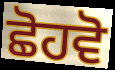
ਛੋਹਵੋ